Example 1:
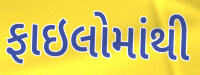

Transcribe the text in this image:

ફાઇલોમાંથી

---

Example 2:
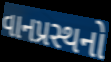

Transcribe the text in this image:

વાનપ્રસ્થનો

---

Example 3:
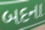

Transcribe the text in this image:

બદના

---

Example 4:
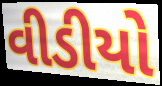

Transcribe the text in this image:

વીડીયો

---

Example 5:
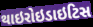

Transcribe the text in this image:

થાઇરોઇડાઇટિસ